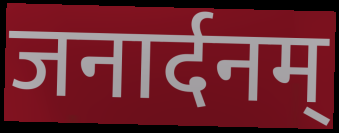
जनार्दनम्